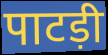
पाटड़ी